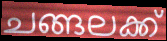
ചങ്ങലക്ക്